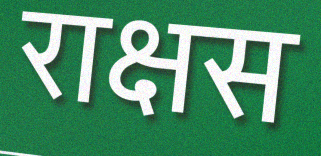
राक्षस